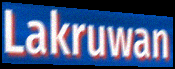
Lakruwan